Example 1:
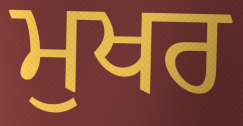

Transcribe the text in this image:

ਮੁਖਰ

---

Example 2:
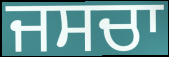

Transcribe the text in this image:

ਜਸਚਾ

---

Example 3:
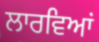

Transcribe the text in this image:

ਲਾਰਵਿਆਂ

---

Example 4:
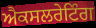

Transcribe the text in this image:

ਐਕਸਲਰੇਟਿੰਗ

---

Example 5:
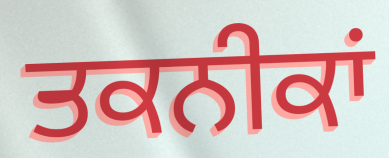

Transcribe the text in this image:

ਤਕਨੀਕਾਂ